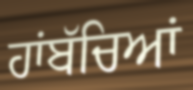
ਹਾਂਬੱਚਿਆਂ